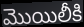
మొయిలీకి